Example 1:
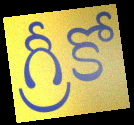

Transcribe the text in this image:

గ్రీకో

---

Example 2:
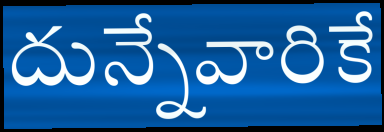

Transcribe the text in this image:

దున్నేవారికే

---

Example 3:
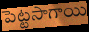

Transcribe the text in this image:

పెట్టసాగాయి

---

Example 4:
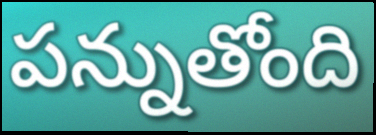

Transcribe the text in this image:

పన్నుతోంది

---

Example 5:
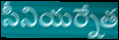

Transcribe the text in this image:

సీనియర్నేత